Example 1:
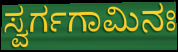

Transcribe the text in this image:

ಸ್ವರ್ಗಗಾಮಿನಃ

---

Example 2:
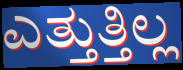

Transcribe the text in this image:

ಎತ್ತುತ್ತಿಲ್ಲ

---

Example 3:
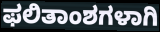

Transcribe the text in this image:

ಫಲಿತಾಂಶಗಳಾಗಿ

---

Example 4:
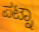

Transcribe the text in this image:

ಪಟ್ನಾ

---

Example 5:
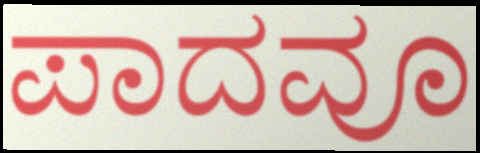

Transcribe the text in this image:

ಪಾದವೂ